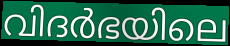
വിദർഭയിലെ